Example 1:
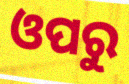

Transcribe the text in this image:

ଓପରୁ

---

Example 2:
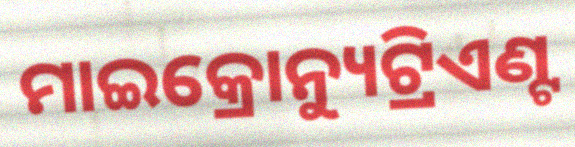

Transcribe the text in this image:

ମାଇକ୍ରୋନ୍ୟୁଟ୍ରିଏଣ୍ଟ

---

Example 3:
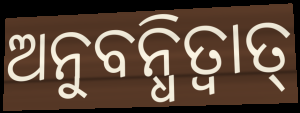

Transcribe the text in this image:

ଅନୁବନ୍ଧିତ୍ଵାତ୍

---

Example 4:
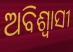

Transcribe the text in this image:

ଅବିଶ୍ଵାସୀ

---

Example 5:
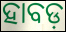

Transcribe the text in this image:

ହାବଡ଼